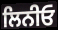
ਲਿਨੀਓ